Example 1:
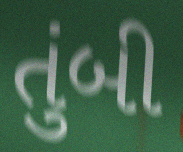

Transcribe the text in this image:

તુંબી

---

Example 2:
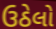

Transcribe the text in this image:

ઉઠેલો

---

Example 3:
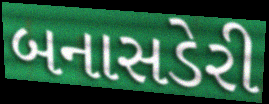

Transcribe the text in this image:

બનાસડેરી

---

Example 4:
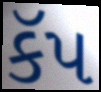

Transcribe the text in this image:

કૅપ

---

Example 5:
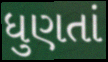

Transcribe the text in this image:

ધુણતાં